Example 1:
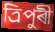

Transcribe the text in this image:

ত্ৰিপুৰী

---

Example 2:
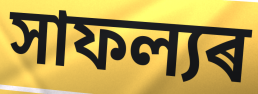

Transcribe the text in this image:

সাফল্যৰ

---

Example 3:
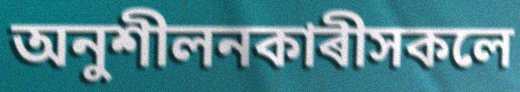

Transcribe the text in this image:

অনুশীলনকাৰীসকলে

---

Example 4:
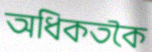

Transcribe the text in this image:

অধিকতকৈ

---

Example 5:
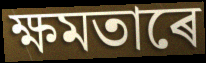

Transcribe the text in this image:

ক্ষমতাৰে